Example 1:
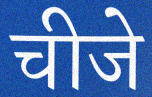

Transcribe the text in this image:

चीजे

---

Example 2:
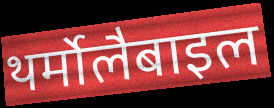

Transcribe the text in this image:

थर्मोलैबाइल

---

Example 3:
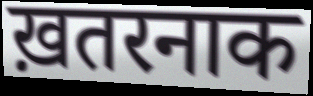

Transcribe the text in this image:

ख़तरनाक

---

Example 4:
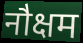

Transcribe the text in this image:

नौक्षम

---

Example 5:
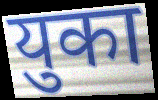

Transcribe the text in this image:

युका